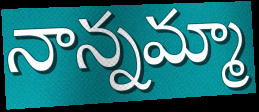
నాన్నమ్మా